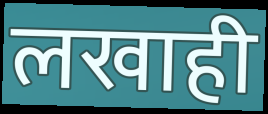
लखाही